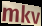
mkv